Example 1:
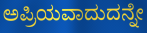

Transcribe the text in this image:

ಅಪ್ರಿಯವಾದುದನ್ನೇ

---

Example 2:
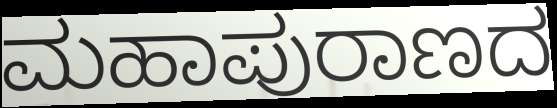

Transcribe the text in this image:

ಮಹಾಪುರಾಣದ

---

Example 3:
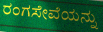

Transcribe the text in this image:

ರಂಗಸೇವೆಯನ್ನು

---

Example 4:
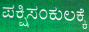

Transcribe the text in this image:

ಪಕ್ಷಿಸಂಕುಲಕ್ಕೆ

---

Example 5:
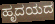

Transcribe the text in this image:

ಹೃದಯದ